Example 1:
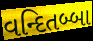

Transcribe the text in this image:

વન્દિતબ્બા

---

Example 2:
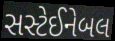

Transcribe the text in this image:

સસ્ટેઈનેબલ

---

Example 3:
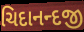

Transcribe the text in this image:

ચિદાનન્દજી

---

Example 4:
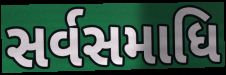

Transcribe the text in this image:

સર્વસમાધિ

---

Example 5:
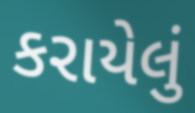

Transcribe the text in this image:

કરાયેલું